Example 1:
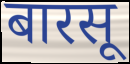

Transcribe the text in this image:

बारसू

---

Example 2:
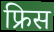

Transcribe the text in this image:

फ्रिस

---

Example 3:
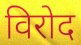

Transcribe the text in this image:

विरोद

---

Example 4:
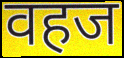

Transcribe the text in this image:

वहज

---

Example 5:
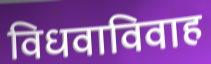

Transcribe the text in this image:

विधवाविवाह